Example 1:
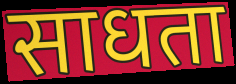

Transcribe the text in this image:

साधता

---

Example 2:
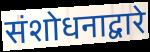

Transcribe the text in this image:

संशोधनाद्वारे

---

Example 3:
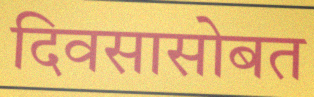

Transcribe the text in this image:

दिवसासोबत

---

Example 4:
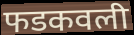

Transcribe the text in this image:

फडकवली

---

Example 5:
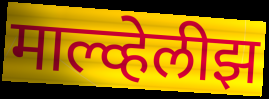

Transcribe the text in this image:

माल्व्हेलीझ